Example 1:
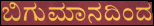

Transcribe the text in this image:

ಬಿಗುಮಾನದಿಂದ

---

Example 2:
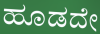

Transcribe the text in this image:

ಹೂಡದೇ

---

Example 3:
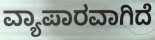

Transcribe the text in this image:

ವ್ಯಾಪಾರವಾಗಿದೆ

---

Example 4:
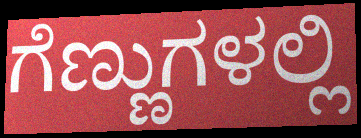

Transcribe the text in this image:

ಗೆಣ್ಣುಗಳಲ್ಲಿ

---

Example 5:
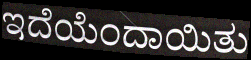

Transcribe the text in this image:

ಇದೆಯೆಂದಾಯಿತು